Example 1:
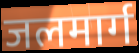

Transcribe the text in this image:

जलमार्ग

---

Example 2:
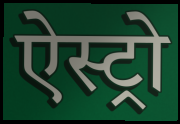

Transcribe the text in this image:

ऐस्ट्रो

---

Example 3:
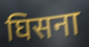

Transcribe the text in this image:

घिसना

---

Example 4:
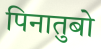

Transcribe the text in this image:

पिनातुबो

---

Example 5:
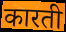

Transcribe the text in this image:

कारती